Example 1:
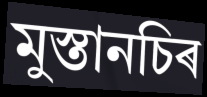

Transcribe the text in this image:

মুস্তানচিৰ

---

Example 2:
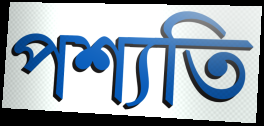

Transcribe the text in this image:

পশ্যতি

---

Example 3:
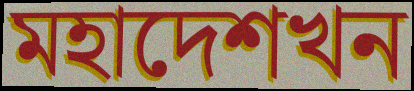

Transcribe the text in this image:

মহাদেশখন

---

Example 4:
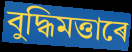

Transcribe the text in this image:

বুদ্ধিমত্তাৰে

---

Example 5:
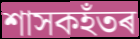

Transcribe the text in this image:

শাসকহঁতৰ